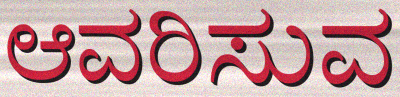
ಆವರಿಸುವ